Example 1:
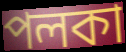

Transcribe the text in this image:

পলকা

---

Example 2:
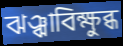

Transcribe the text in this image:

ঝঞ্ঝাবিক্ষুব্ধ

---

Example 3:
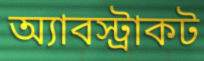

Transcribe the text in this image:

অ্যাবস্ট্রাকট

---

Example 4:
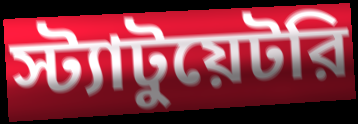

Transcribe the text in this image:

স্ট্যাটুয়েটরি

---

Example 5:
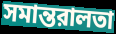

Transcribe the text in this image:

সমান্তরালতা